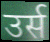
उर्स